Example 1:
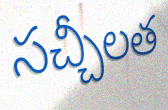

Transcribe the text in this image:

సచ్చీలత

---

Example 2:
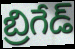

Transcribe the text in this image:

బ్రిగేడ్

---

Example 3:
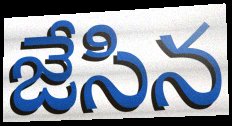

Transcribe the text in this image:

జేసిన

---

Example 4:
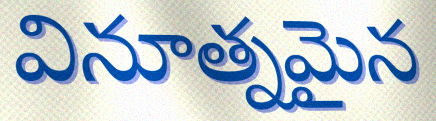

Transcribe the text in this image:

వినూత్నమైన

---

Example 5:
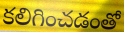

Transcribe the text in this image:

కలిగించడంతో